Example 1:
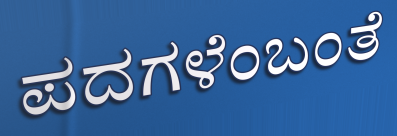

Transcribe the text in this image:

ಪದಗಳೆಂಬಂತೆ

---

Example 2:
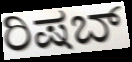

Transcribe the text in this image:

ರಿಷಬ್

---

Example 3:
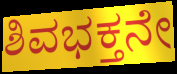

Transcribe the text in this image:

ಶಿವಭಕ್ತನೇ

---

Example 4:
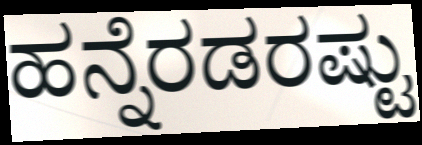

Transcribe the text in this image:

ಹನ್ನೆರಡರಷ್ಟು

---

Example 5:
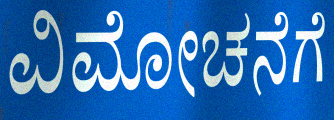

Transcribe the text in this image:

ವಿಮೋಚನೆಗೆ